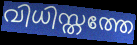
വിധിസ്തത്തേ